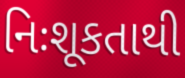
નિઃશૂકતાથી